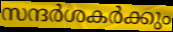
സന്ദർശകർക്കും